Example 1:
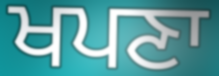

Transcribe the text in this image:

ਖਪਣਾ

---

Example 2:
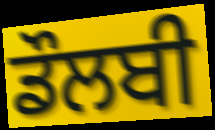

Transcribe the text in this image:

ਡੌਲਬੀ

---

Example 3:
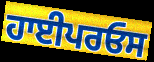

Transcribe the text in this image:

ਹਾਈਪਰਓਸ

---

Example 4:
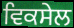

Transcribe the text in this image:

ਵਿਕਸੇਲ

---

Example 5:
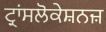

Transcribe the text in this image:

ਟ੍ਰਾਂਸਲੋਕੇਸ਼ਨਜ਼